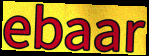
ebaar